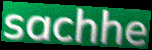
sachhe